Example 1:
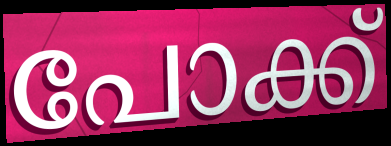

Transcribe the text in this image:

പോക്ക്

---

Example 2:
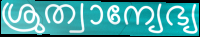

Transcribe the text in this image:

ശ്രുത്വാന്യേഭ്യ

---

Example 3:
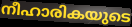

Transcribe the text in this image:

നീഹാരികയുടെ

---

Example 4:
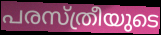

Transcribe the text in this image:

പരസ്ത്രീയുടെ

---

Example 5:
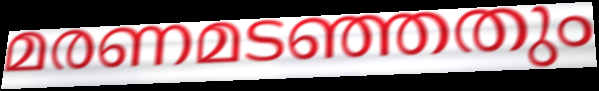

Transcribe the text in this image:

മരണമടഞ്ഞതും